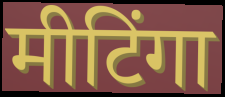
मीटिंगा